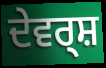
ਦੇਵਰ੍ਸ਼